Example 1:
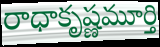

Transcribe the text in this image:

రాధాకృష్ణమూర్తి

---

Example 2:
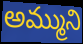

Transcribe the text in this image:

అమ్ముని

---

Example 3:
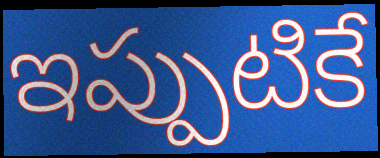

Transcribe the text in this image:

ఇప్పుటికే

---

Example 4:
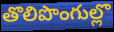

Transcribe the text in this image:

తొలిపొంగుల్లొ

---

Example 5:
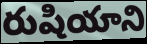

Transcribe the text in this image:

రుషియాని